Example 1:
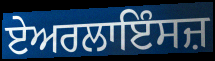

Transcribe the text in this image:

ਏਅਰਲਾਇੰਸਜ਼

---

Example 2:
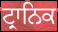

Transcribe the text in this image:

ਟ੍ਰਾਨਿਕ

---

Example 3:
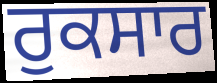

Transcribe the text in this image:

ਰੁਕਸਾਰ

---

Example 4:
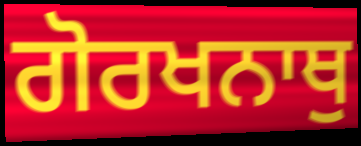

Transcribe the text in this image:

ਗੋਰਖਨਾਥੁ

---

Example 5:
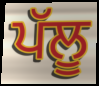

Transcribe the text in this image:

ਪੱਲੂ